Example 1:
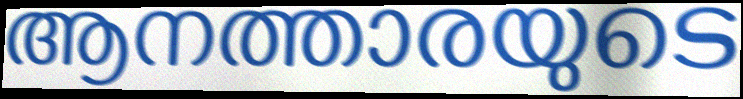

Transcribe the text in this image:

ആനത്താരയുടെ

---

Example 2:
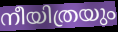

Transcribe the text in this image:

നീയിത്രയും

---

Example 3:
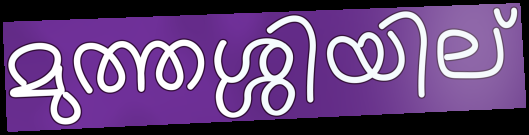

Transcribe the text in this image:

മുത്തശ്ശിയില്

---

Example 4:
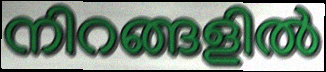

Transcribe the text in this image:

നിറങ്ങളിൽ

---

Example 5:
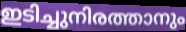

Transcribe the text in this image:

ഇടിച്ചുനിരത്താനും